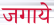
जगाये